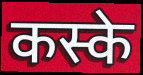
कस्के